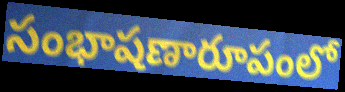
సంభాషణారూపంలో